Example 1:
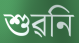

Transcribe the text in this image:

শুৱনি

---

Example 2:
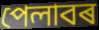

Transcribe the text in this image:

পেলাবৰ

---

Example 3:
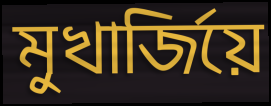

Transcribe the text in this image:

মুখাৰ্জিয়ে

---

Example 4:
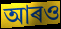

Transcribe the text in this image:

আৰও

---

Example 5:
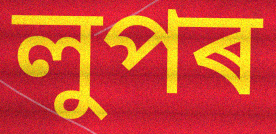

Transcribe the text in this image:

লুপৰ